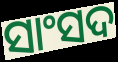
ସାଂସଦ